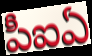
పీఐఏ